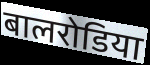
बालरोडिया